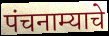
पंचनाम्याचे